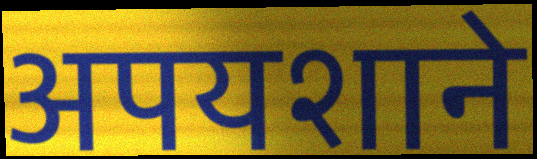
अपयशाने